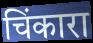
चिंकारा